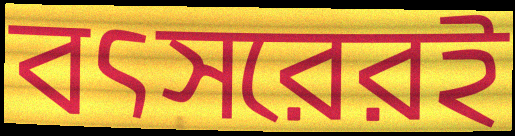
বৎসরেরই